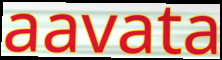
aavata